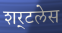
शर्टलेस